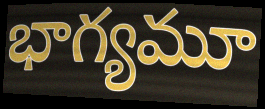
భాగ్యమూ